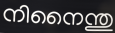
നിനൈന്തു